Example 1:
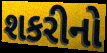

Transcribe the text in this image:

શકરીનો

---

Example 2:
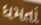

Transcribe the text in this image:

ધમતાં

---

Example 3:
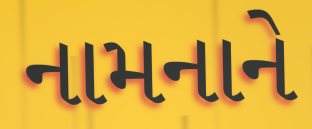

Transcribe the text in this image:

નામનાને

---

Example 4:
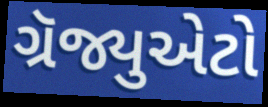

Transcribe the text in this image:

ગ્રૅજ્યુએટો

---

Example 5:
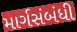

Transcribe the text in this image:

માર્ગસંબંધી